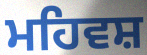
ਮਹਿਵਸ਼